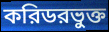
করিডরভুক্ত